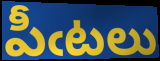
పీఁటలు